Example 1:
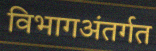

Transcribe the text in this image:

विभागअंतर्गत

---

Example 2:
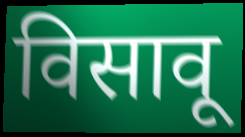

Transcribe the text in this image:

विसावू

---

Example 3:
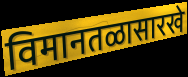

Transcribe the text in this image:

विमानतळासारखे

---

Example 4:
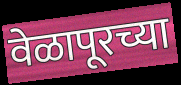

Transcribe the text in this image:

वेळापूरच्या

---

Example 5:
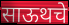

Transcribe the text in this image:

साऊथचे